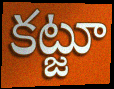
కట్జూ